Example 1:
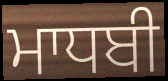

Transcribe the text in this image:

ਮਾਧਬੀ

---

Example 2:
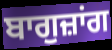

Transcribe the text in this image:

ਬਾਗੁਜ਼ਾਂਗ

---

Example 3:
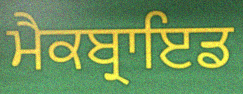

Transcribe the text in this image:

ਮੈਕਬ੍ਰਾਇਡ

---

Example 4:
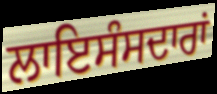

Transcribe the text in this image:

ਲਾਇਸੰਸਦਾਰਾਂ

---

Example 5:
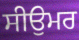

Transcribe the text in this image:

ਸੀਉਮਰ